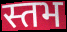
स्तभ